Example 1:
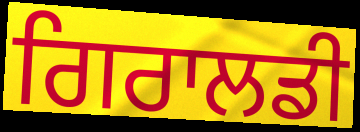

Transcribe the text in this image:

ਗਿਰਾਲਡੀ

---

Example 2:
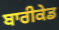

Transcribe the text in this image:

ਬਾਰੀਕੇਡ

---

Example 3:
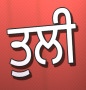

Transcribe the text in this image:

ਤੁਲੀ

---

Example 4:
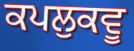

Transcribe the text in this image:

ਕਪਲੁਕਵੂ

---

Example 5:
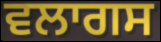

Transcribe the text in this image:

ਵਲਾਗਸ